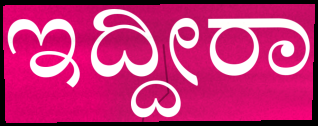
ಇದ್ದೀರಾ